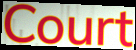
Court